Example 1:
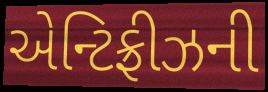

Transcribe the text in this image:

એન્ટિફ્રીઝની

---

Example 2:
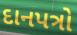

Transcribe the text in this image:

દાનપત્રો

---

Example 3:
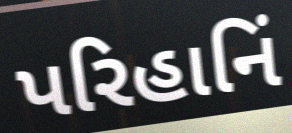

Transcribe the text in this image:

પરિહાનિં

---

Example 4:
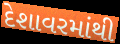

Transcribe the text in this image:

દેશાવરમાંથી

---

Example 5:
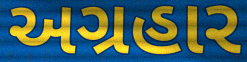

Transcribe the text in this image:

અગ્રહાર